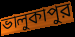
ভালুকাপুর